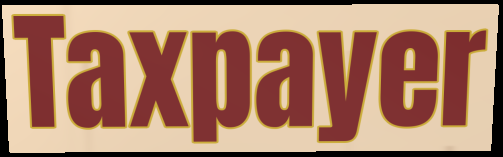
Taxpayer